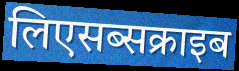
लिएसब्सक्राइब